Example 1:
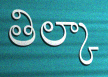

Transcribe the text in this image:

తిల్కా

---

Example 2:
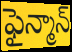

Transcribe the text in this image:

ఫైన్మాన్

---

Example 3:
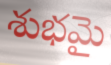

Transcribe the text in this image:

శుభమై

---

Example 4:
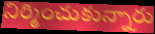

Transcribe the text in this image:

నిర్మించుకున్నారు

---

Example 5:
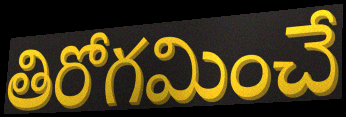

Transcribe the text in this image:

తిరోగమించే